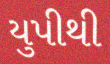
યુપીથી